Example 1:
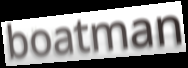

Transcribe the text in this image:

boatman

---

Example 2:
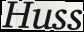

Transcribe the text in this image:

Huss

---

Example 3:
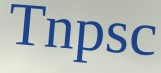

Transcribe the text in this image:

Tnpsc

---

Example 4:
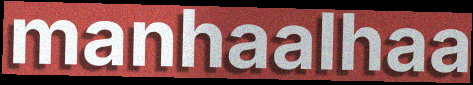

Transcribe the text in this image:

manhaalhaa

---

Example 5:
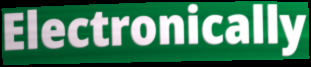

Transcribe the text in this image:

Electronically